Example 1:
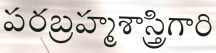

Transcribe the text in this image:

పరబ్రహ్మశాస్త్రిగారి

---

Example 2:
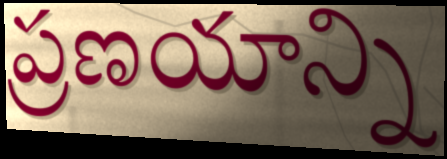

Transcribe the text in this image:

ప్రణయాన్ని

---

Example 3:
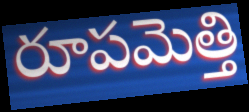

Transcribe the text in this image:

రూపమెత్తి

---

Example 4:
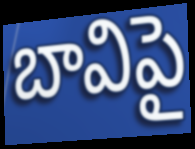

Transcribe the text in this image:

బావిపై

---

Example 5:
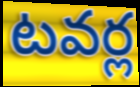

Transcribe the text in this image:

టవర్ల